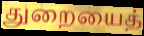
துறையைத்